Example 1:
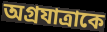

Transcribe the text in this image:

অগ্রযাত্রাকে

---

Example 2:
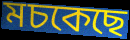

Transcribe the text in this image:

মচকেছে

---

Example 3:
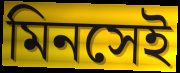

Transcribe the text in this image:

মিনসেই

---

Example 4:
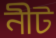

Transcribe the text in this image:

নীট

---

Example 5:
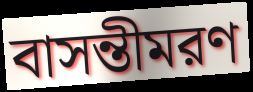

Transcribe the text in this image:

বাসন্তীমরণ